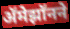
ॲमेझॉनने